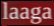
laaga